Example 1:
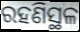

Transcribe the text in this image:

ରହଣିସ୍ଥଳ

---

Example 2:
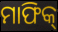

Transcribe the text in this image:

ମାଫିକ୍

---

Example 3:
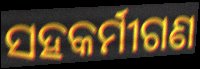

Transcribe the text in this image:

ସହକର୍ମୀଗଣ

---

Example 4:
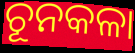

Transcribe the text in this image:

ଚୂନକଳା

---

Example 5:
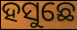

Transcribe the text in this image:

ହସୁଛେ